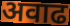
अवाढ